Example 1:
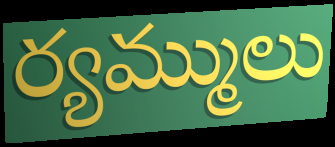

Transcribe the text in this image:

ర్యమ్ములు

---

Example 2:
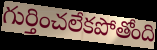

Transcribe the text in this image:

గుర్తించలేకపోతోంది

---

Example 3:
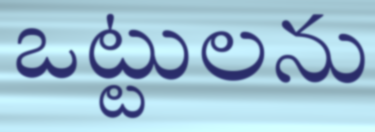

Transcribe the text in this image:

ఒట్టులను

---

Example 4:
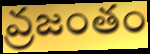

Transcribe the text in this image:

వ్రజంతం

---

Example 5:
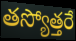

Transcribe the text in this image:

తస్యోత్తరే